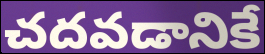
చదవడానికే